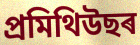
প্ৰমিথিউছৰ